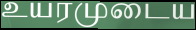
உயரமுடைய